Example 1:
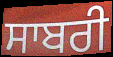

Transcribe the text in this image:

ਸਾਬਰੀ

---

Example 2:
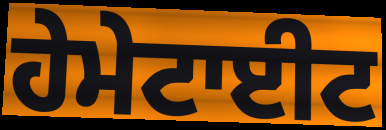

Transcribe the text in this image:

ਹੇਮੇਟਾਈਟ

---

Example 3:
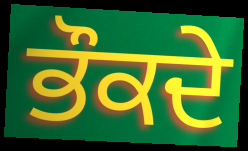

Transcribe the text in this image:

ਭੌਕਦੇ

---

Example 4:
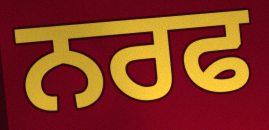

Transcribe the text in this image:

ਨਰਫ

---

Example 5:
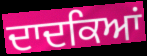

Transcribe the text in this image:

ਦਾਦਕਿਆਂ